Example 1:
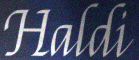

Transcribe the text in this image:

Haldi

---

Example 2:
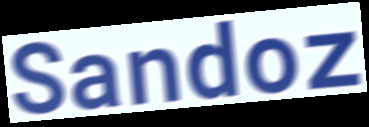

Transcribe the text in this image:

Sandoz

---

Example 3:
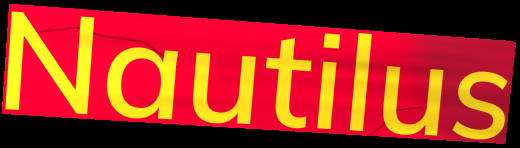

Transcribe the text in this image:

Nautilus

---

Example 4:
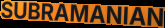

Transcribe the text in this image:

SUBRAMANIAN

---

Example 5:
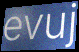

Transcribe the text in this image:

evuj